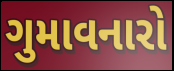
ગુમાવનારો